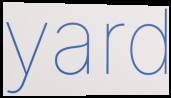
yard